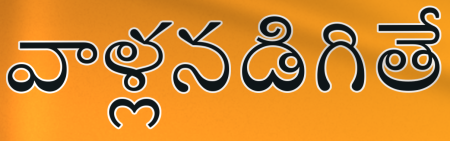
వాళ్లనడిగితే